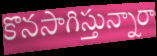
కొనసాగిస్తున్నారా